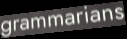
grammarians